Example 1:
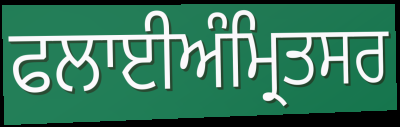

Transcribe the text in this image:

ਫਲਾਈਅੰਮ੍ਰਿਤਸਰ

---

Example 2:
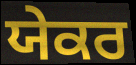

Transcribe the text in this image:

ਯੇਕਰ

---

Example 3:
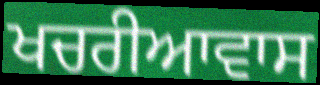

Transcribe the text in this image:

ਖਚਰੀਆਵਾਸ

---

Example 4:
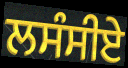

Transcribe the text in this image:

ਲਸੰਸੀਏ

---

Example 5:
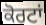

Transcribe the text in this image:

ਕੋਰਟਾਂ